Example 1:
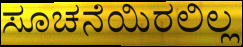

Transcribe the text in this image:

ಸೂಚನೆಯಿರಲಿಲ್ಲ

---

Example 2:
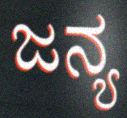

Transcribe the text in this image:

ಜನ್ಯ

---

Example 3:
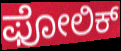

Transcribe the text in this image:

ಫೋಲಿಕ್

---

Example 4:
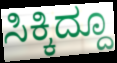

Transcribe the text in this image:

ಸಿಕ್ಕಿದ್ದೂ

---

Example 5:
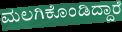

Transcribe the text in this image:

ಮಲಗಿಕೊಂಡಿದ್ದಾರೆ